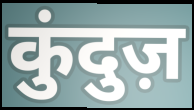
कुंदुज़